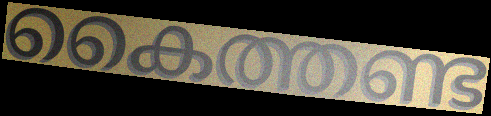
കൈത്തണ്ട